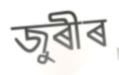
জুৰীৰ